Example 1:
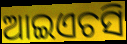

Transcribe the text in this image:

ଆଇଏଚସି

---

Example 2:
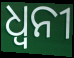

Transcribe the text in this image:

ଧ୍ବନୀ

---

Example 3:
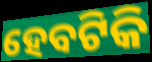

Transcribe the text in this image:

ହେବଟିକି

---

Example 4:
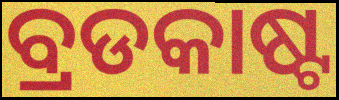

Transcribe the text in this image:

ବ୍ରଡକାଷ୍ଟ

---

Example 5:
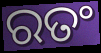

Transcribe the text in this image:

ରତଂ